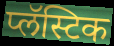
प्लॅस्टिक